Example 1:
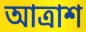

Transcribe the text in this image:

আত্রাশ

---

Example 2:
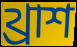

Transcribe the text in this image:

থ্রাশ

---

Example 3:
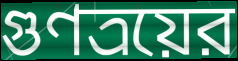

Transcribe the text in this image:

গুণত্রয়ের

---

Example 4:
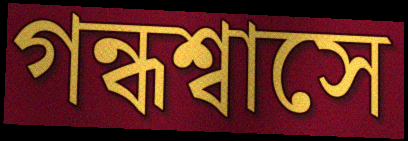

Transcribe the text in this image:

গন্ধশ্বাসে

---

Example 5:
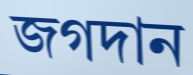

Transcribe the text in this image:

জগদান